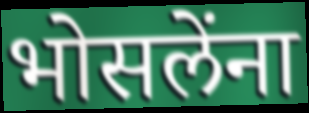
भोसलेंना